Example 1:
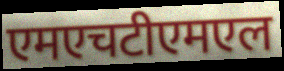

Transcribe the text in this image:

एमएचटीएमएल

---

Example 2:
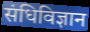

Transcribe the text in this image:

संधिविज्ञान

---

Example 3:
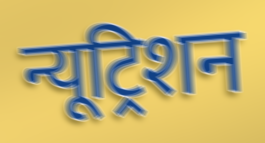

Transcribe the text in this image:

न्यूट्रिशन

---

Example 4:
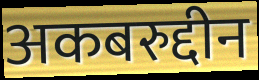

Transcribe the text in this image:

अकबरुद्दीन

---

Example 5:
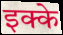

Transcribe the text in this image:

इक्के